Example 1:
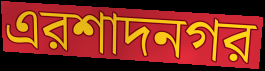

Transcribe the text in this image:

এরশাদনগর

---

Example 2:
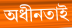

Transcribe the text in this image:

অধীনতাই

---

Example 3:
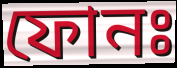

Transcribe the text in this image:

ফোনঃ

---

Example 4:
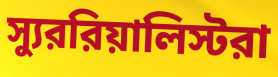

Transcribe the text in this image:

স্যুররিয়ালিস্টরা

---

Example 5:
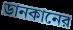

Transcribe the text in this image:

ডানকানের